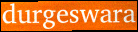
durgeswara